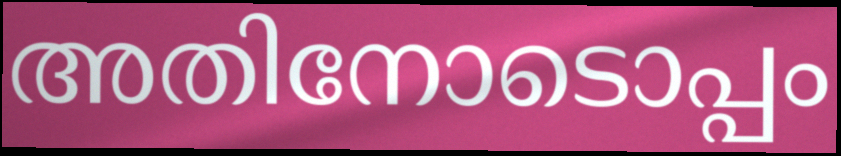
അതിനോടൊപ്പം